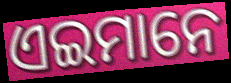
ଏଇମାନେ